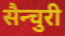
सैन्चुरी